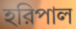
হরিপাল